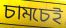
চামচেই